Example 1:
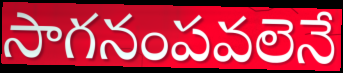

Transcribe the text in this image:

సాగనంపవలెనే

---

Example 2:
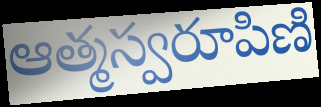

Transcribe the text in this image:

ఆత్మస్వరూపిణి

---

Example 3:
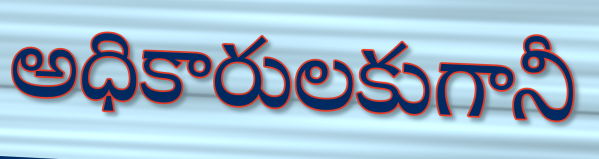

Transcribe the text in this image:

అధికారులకుగానీ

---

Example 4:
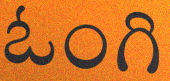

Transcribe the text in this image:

ఓంగి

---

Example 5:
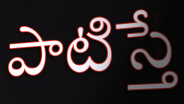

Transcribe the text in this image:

పాటిస్తే